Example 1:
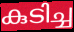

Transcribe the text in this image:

കുടിച്ച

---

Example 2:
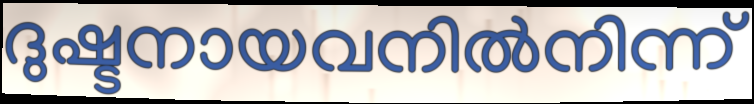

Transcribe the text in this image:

ദുഷ്ടനായവനിൽനിന്ന്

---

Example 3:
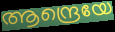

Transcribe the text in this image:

ആന്ദ്രെയേ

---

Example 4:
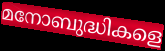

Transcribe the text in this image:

മനോബുദ്ധികളെ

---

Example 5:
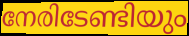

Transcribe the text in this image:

നേരിടേണ്ടിയും